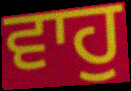
ਵਾਹੁ